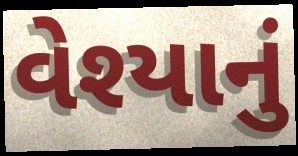
વેશ્યાનું